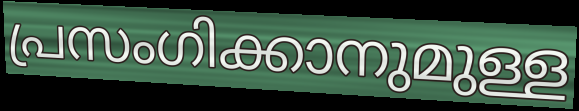
പ്രസംഗിക്കാനുമുള്ള